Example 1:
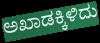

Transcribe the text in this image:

ಅಖಾಡಕ್ಕಿಳಿದು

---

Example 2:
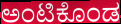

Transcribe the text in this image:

ಅಂಟಿಕೊಂಡ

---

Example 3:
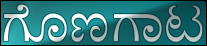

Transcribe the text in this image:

ಗೊಣಗಾಟ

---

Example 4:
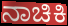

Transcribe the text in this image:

ನಾಚಿಕಿ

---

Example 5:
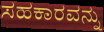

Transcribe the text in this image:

ಸಹಕಾರವನ್ನು